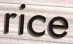
rice